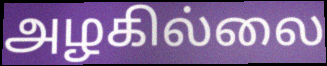
அழகில்லை